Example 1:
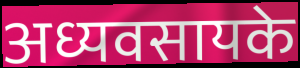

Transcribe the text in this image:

अध्यवसायके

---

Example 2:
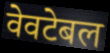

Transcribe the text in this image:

वेवटेबल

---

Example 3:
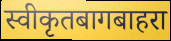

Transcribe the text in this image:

स्वीकृतबागबाहरा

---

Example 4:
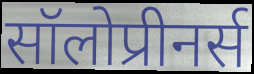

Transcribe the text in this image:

सॉलोप्रीनर्स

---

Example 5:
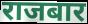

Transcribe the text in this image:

राजबार